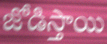
జోడిస్తాయి